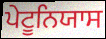
ਪੇਟੂਨਿਯਾਸ